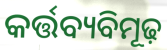
କର୍ତ୍ତବ୍ୟବିମୂଢ଼